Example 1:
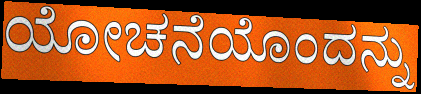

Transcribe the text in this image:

ಯೋಚನೆಯೊಂದನ್ನು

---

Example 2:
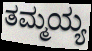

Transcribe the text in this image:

ತಮ್ಮಯ್ಯ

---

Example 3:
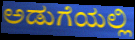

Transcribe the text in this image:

ಅಡುಗೆಯಲ್ಲಿ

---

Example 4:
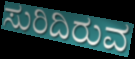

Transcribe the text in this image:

ಸುರಿದಿರುವ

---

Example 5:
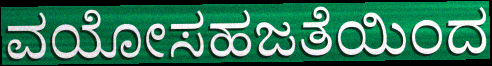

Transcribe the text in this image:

ವಯೋಸಹಜತೆಯಿಂದ